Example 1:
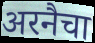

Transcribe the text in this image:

अरनैचा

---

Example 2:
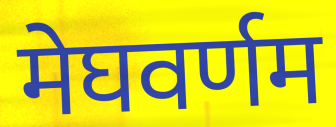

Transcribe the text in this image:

मेघवर्णम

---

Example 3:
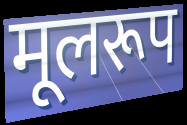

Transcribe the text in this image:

मूलरूप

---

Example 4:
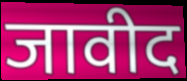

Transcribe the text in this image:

जावीद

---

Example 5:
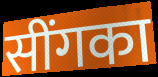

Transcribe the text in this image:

सींगका